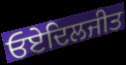
ਓਏਦਿਲਜੀਤ